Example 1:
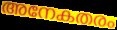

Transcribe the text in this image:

അനേകതരം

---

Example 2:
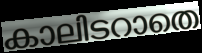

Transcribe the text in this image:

കാലിടറാതെ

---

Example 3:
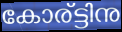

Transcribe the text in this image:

കോര്ട്ടിനു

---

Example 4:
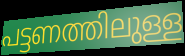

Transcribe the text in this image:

പട്ടണത്തിലുള്ള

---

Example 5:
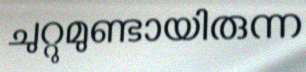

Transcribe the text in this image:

ചുറ്റുമുണ്ടായിരുന്ന